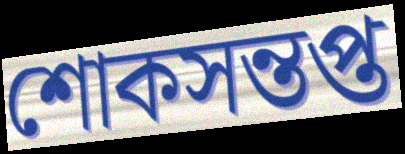
শোকসন্তপ্ত